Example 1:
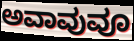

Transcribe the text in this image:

ಅವಾವುವೂ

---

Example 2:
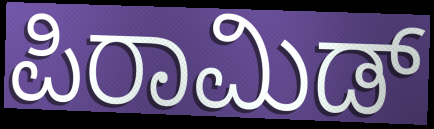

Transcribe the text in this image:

ಪಿರಾಮಿಡ್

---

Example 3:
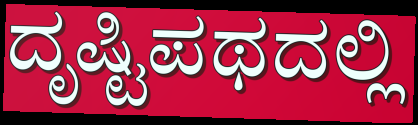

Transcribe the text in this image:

ದೃಷ್ಟಿಪಥದಲ್ಲಿ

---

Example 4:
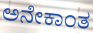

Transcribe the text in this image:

ಅನೇಕಾಂತ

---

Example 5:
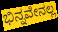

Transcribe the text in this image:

ಭಿನ್ನವೇನಲ್ಲ